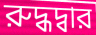
রুদ্ধদ্বার